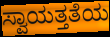
ಸ್ವಾಯತ್ತತೆಯ